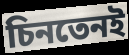
চিনতেনই